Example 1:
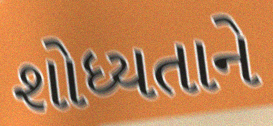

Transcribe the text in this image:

શોધ્યતાને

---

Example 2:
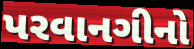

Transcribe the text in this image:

પરવાનગીનો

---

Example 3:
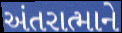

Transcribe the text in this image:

અંતરાત્માને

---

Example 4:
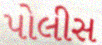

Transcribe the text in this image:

પોલીસ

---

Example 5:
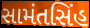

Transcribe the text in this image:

સામંતસિંહ